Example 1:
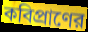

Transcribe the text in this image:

কবিপ্রাণের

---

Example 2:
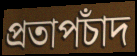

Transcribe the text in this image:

প্রতাপচাঁদ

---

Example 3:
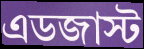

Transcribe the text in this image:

এডজাস্ট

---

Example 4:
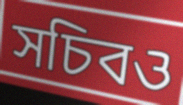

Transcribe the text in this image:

সচিবও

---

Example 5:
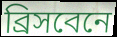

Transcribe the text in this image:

ব্রিসবেনে